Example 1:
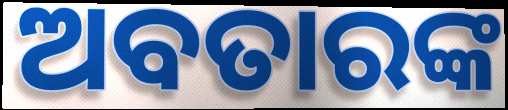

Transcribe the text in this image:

ଅବତାରଙ୍କ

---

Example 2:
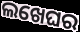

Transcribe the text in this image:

ଲଖେଘର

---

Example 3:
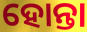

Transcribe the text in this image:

ହୋନ୍ତା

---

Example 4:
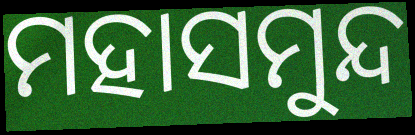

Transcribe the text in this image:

ମହାସମୁନ୍ଦ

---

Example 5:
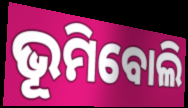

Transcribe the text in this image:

ଭୂମିବୋଲି